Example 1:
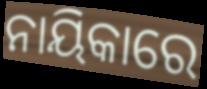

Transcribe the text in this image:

ନାୟିକାରେ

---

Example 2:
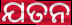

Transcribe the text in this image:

ଯତନ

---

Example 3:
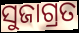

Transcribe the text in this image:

ସୁଜାଗ୍ରତ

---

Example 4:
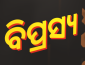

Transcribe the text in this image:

ବିପ୍ରସ୍ୟ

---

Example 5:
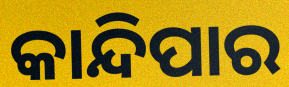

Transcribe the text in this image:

କାନ୍ଦିପାର